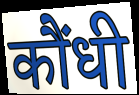
कौंधी